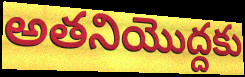
అతనియొద్దకు